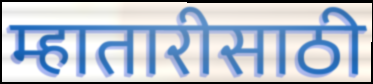
म्हातारीसाठी